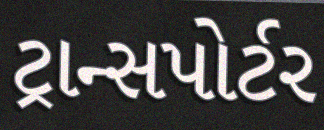
ટ્રાન્સપોર્ટર